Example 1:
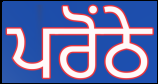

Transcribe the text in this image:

ਪਰੋਂਠੇ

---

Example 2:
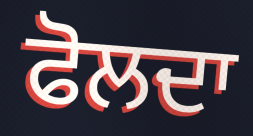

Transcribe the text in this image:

ਫੋਲਦਾ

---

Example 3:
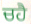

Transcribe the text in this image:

ਚਹੈ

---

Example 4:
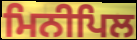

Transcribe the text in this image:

ਮਿਨੀਪਿਲ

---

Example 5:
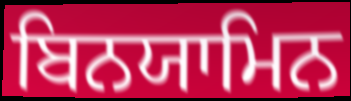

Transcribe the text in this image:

ਬਿਨਯਾਮਿਨ